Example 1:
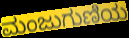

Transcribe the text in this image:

ಮಂಜುಗುಣಿಯ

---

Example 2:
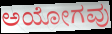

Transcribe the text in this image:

ಅಯೋಗವು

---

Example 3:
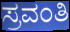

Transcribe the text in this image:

ಸ್ರವಂತಿ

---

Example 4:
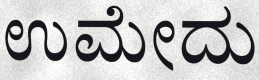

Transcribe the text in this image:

ಉಮೇದು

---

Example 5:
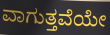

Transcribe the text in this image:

ವಾಗುತ್ತವೆಯೇ